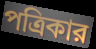
পত্রিকার